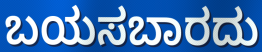
ಬಯಸಬಾರದು